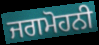
ਜਗਮੋਹਨੀ